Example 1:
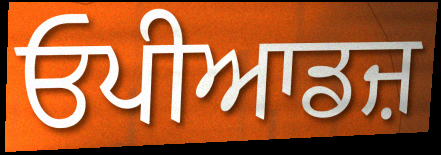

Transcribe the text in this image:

ਓਪੀਆਡਜ਼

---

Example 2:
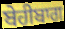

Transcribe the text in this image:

ਬੇਹੀਬਾਗ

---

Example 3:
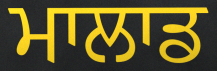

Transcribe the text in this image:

ਮਾਲਾਡ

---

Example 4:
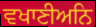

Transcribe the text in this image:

ਵਖਾਣੀਅਨਿ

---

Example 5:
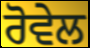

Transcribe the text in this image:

ਰੋਵੇਲ